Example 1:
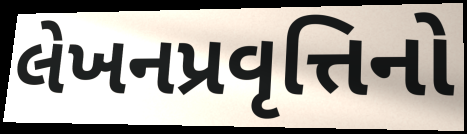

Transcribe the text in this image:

લેખનપ્રવૃત્તિનો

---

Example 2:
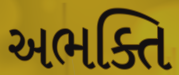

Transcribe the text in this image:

અભક્તિ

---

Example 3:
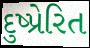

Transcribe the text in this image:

દુષ્પ્રેરિત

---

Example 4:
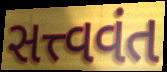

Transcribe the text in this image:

સત્ત્વવંત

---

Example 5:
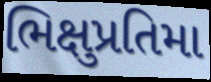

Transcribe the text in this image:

ભિક્ષુપ્રતિમા